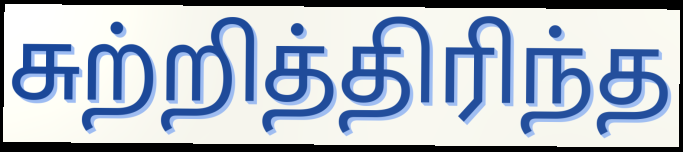
சுற்றித்திரிந்த